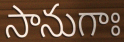
సానుగాః